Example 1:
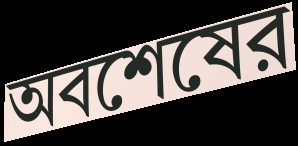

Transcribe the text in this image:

অবশেষের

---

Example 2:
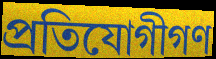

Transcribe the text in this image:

প্রতিযোগীগণ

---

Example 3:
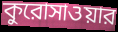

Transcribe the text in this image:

কুরোসাওয়ার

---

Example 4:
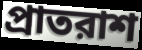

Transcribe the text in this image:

প্রাতরাশ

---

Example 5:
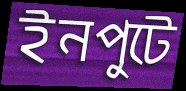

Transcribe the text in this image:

ইনপুটে